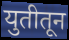
युतीतून